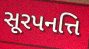
સૂરપનત્તિ